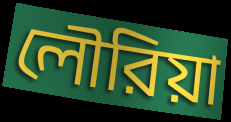
লৌরিয়া